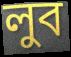
লুব